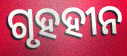
ଗୃହହୀନ